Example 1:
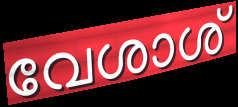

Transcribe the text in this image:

വേശാശ്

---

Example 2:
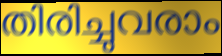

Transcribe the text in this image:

തിരിച്ചുവരാം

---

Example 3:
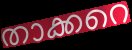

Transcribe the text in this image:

താക്കറെ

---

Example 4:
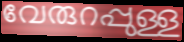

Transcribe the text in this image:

വേരുറപ്പുള്ള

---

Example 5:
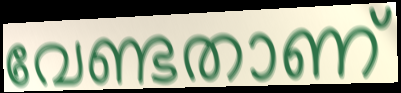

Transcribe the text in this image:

വേണ്ടതാണ്